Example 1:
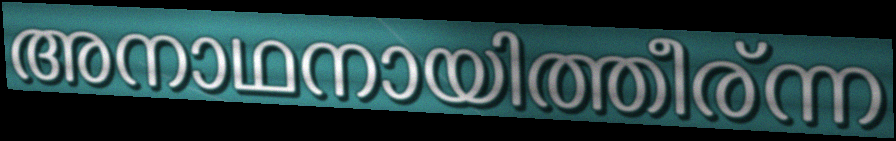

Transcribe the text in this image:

അനാഥനായിത്തീര്ന്ന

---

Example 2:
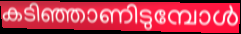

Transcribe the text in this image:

കടിഞ്ഞാണിടുമ്പോൾ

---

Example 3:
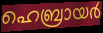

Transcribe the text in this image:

ഹെബ്രായർ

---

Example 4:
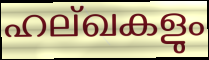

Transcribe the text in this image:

ഹല്ഖകളും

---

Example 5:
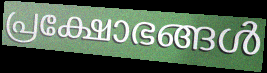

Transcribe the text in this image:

പ്രക്ഷോഭങ്ങൾ